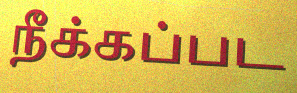
நீக்கப்பட